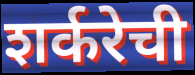
शर्करेची